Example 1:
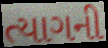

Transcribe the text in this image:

ત્‍યાગની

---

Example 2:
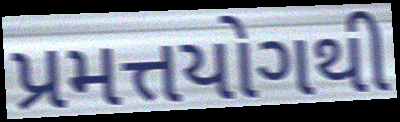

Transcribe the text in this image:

પ્રમત્તયોગથી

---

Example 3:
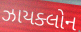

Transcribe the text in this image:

ઝાયક્લોન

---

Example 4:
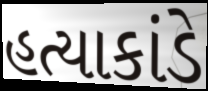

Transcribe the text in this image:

હત્યાકાંડે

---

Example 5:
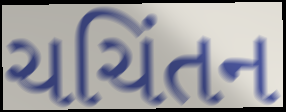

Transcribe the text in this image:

ચચિંતન